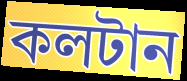
কলটান